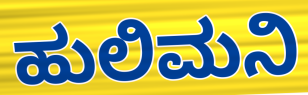
ಹುಲಿಮನಿ